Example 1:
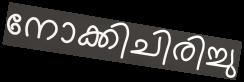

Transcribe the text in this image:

നോക്കിചിരിച്ചു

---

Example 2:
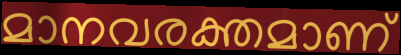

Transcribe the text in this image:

മാനവരക്തമാണ്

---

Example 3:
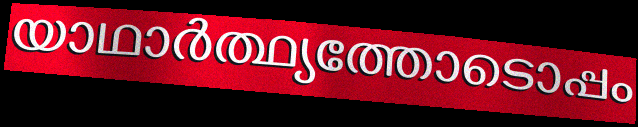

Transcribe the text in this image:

യാഥാർത്ഥ്യത്തോടൊപ്പം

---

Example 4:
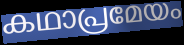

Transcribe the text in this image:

കഥാപ്രമേയം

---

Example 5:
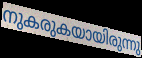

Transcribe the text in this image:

നുകരുകയായിരുന്നു